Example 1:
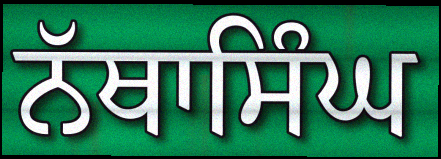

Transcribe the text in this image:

ਨੱਥਾਸਿੰਘ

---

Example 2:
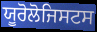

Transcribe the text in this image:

ਯੂਰੋਲੋਜਿਸਟਸ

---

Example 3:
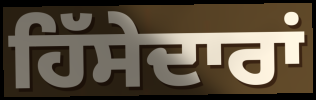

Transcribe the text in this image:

ਹਿੱਸੇਦਾਰਾਂ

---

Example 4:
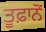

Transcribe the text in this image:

ਤੂਫ਼ਾਨੋਂ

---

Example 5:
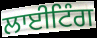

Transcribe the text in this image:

ਲਾਈਟਿੰਗ